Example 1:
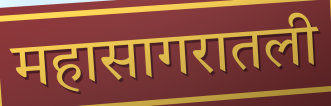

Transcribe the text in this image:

महासागरातली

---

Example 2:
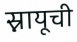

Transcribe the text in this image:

स्नायूची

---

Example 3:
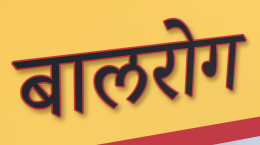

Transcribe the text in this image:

बालरोग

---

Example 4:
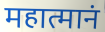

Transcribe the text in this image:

महात्मानं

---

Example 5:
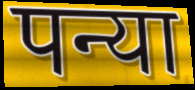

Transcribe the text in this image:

पन्या